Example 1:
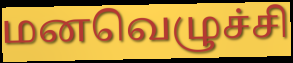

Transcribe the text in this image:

மனவெழுச்சி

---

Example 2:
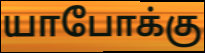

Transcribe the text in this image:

யாபோக்கு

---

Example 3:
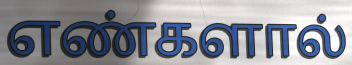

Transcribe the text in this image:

எண்களால்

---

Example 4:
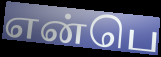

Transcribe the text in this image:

என்பெ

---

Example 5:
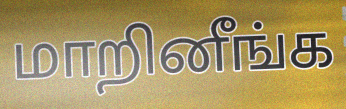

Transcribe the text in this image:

மாறினீங்க